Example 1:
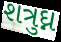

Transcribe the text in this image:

શત્રુઘ્ન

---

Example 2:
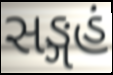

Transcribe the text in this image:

સઙ્ગહં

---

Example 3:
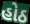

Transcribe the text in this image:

હોઠ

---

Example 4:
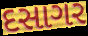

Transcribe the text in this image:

દસાગર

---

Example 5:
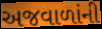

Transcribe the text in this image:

અજવાળાંની